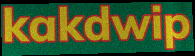
kakdwip